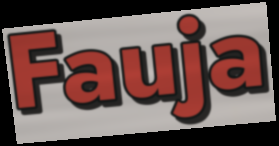
Fauja